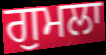
ਗੁਮਲਾ